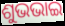
ଶୁଭଭାଇ